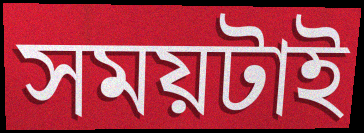
সময়টাই